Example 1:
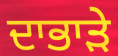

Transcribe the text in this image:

ਦਾਭਾੜੇ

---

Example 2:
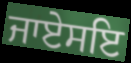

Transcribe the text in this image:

ਜਾਏਸਇ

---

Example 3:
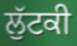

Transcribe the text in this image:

ਲੁੱਟਕੀ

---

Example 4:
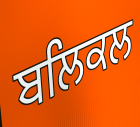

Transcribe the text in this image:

ਬਲਿਕਲ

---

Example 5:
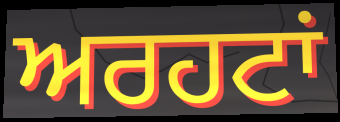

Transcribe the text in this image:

ਅਰਹਟਾਂ